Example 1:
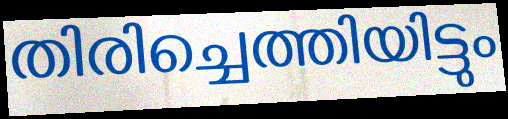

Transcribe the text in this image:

തിരിച്ചെത്തിയിട്ടും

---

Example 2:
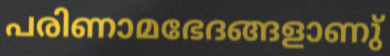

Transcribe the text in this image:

പരിണാമഭേദങ്ങളാണു്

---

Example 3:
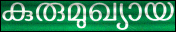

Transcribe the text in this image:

കുരുമുഖ്യായ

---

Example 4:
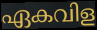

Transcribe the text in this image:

ഏകവിള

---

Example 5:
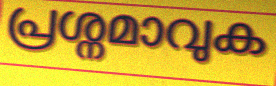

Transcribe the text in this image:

പ്രശ്നമാവുക